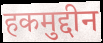
हकमुद्दीन